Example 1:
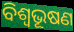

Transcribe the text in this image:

ବିଶ୍ୱଭୂଷଣ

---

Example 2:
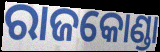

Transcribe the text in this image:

ରାଜକୋଣ୍ଡା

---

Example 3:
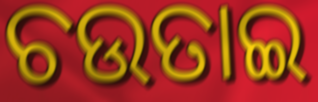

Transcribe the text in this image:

ଚଉତାଇ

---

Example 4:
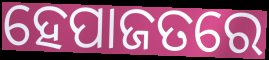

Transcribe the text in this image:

ହେପାଜତରେ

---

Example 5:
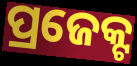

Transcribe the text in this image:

ପ୍ରଜେକ୍ଟ